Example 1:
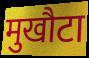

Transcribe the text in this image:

मुखौटा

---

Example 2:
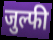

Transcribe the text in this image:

जुल्फी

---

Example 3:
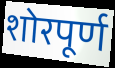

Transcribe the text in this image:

शोरपूर्ण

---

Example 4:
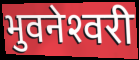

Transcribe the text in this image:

भुवनेश्वरी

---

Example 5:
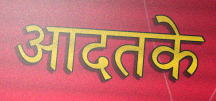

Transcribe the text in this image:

आदतके